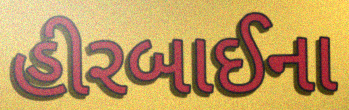
હીરબાઈના